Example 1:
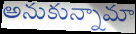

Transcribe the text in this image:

అనుకున్నామా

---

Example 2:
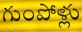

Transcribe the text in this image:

గుంపోళ్లు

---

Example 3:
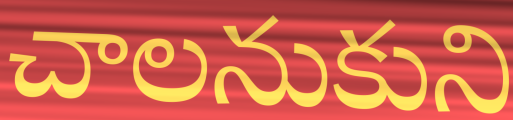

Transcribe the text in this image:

చాలనుకుని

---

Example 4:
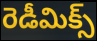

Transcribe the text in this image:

రెడీమిక్స్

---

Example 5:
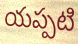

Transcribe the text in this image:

యప్పటి